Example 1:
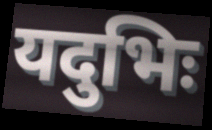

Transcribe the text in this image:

यदुभिः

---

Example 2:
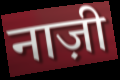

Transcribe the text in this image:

नाज़ी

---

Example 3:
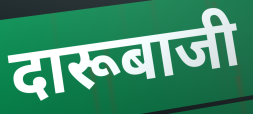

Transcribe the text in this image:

दारूबाजी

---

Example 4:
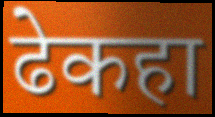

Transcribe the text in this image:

ढेकहा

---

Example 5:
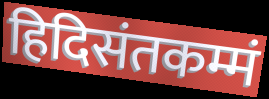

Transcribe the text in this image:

हिदिसंतकम्मं